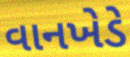
વાનખેડે